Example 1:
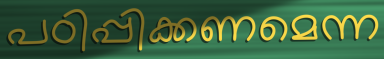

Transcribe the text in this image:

പഠിപ്പിക്കണമെന്ന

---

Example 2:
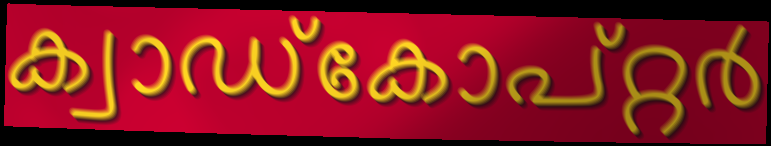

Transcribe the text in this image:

ക്വാഡ്കോപ്റ്റർ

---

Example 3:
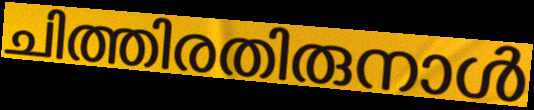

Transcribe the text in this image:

ചിത്തിരതിരുനാൾ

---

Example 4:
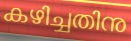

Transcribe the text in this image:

കഴിച്ചതിനു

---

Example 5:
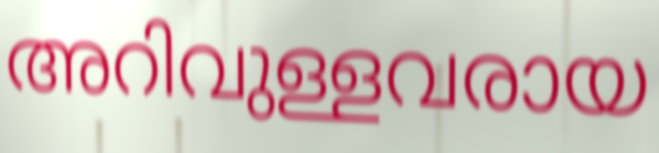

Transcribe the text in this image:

അറിവുള്ളവരായ